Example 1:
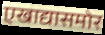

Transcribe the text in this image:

एखाद्यासमोर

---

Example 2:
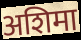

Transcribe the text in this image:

अशिमा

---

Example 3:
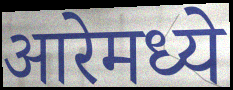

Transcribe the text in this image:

आरेमध्ये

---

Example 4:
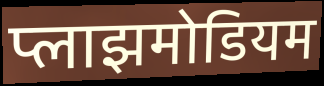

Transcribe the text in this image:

प्लाझमोडियम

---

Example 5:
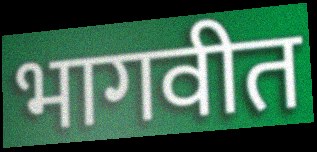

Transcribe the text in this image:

भागवीत